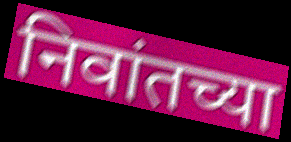
निवांतच्या